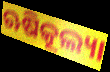
ଋଷିକୂଲ୍ୟା